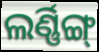
ଲର୍ଣ୍ଣିଙ୍ଗ୍